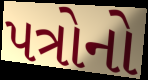
પત્રોનો